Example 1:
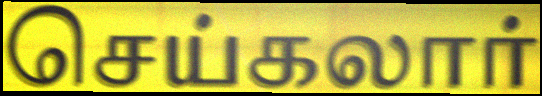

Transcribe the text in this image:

செய்கலார்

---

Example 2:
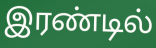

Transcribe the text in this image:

இரண்டில்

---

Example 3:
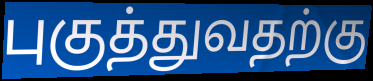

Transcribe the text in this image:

புகுத்துவதற்கு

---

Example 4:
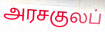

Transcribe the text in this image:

அரசகுலப்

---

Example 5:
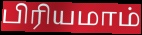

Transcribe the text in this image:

பிரியமாம்